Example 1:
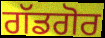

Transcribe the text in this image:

ਗੱਡਗੋਰ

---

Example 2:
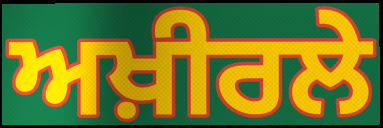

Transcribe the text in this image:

ਅਖ਼ੀਰਲੇ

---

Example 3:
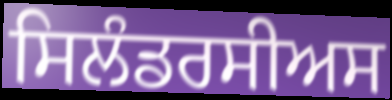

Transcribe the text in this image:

ਸਿਲੰਡਰਸੀਅਸ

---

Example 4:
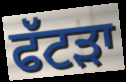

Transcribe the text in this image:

ਫੱਟੜਾ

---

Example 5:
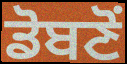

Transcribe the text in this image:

ਡੋਬਣੋਂ